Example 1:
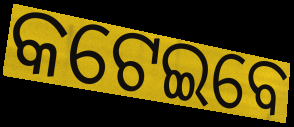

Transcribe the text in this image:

କଟେଇବେ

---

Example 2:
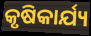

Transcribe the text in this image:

କୃଷିକାର୍ଯ୍ୟ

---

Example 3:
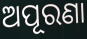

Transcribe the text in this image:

ଅପୂରଣା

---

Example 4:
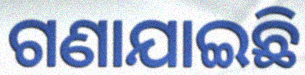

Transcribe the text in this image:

ଗଣାଯାଇଛି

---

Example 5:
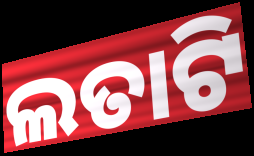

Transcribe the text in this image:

ଲତାଟି